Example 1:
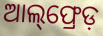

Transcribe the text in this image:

ଆଲ୍‌ଫ୍ରେଡ଼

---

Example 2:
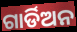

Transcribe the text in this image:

ଗାର୍ଡିଅନ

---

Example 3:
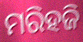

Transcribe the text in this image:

ମରିହଜି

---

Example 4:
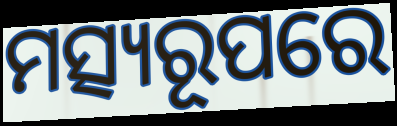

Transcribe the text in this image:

ମତ୍ସ୍ୟରୂପରେ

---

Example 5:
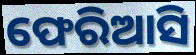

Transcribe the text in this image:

ଫେରିଆସି